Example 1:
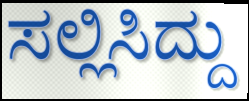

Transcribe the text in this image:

ಸಲ್ಲಿಸಿದ್ದು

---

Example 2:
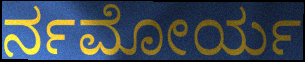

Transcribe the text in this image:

ರ್ನಮೋರ್ಯ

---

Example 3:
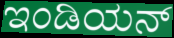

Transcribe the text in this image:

ಇಂಡಿಯನ್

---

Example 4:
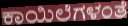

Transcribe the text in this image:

ಕಾಯಿಲೆಗಳಂತೆ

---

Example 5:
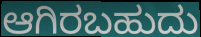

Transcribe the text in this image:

ಆಗಿರಬಹುದು